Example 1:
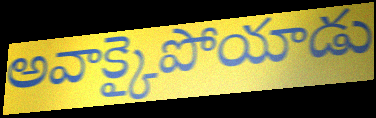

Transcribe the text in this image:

అవాక్కైపోయాడు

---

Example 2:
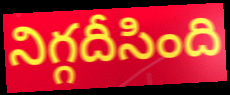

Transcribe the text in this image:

నిగ్గదీసింది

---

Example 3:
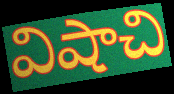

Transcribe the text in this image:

విషాచి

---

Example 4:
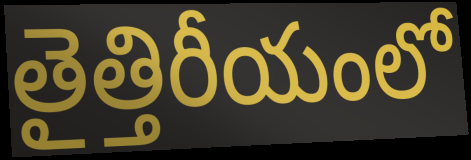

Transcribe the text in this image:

తైత్తిరీయంలో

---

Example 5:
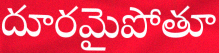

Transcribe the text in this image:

దూరమైపోతూ